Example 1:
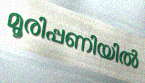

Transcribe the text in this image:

മൂരിപ്പണിയിൽ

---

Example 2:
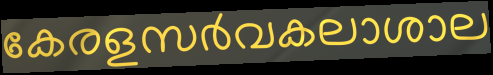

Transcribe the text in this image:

കേരളസർവകലാശാല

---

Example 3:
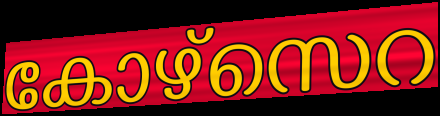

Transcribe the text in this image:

കോഴ്സെറ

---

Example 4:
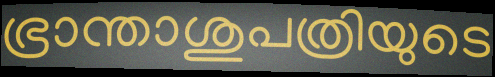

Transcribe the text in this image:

ഭ്രാന്താശുപത്രിയുടെ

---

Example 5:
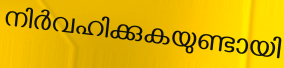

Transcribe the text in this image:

നിർവഹിക്കുകയുണ്ടായി